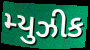
મ્યુઝીક